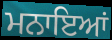
ਮਨਾਇਆਂ